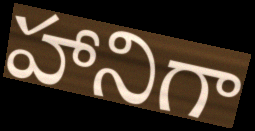
హానిగా